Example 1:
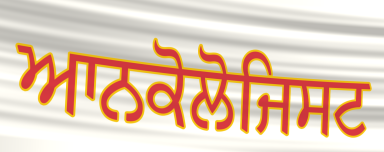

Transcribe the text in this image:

ਆਨਕੋਲੋਜਿਸਟ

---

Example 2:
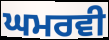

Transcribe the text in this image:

ਘਮਰਵੀ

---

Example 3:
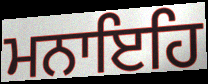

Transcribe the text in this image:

ਮਨਾਇਹਿ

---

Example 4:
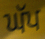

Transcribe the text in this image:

ਘੱਪ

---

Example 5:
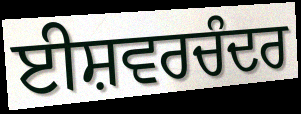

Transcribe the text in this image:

ਈਸ਼ਵਰਚੰਦਰ